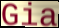
Gia